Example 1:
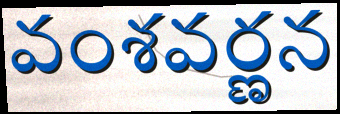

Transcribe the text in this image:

వంశవర్ణన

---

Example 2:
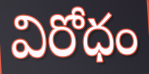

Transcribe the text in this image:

విరోధం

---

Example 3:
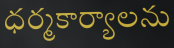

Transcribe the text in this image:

ధర్మకార్యాలను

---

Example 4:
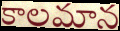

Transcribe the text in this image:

కాలమాన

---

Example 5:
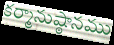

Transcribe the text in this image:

కర్మానుష్ఠానము